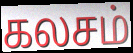
கலசம்